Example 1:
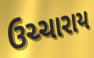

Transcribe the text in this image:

ઉચ્ચારાય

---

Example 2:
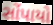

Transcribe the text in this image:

સોંપાયો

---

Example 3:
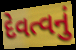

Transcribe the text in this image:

દેવત્વનું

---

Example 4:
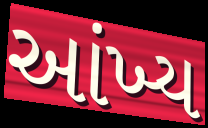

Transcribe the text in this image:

આંખ્ય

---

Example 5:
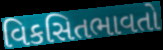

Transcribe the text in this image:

વિકસિતભાવતો